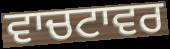
ਵਾਚਟਾਵਰ